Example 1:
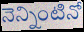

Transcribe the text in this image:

నెన్నింటినో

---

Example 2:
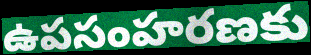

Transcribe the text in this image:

ఉపసంహరణకు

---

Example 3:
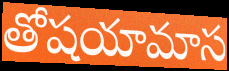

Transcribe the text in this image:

తోషయామాస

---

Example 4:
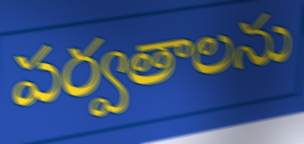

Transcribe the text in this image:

పర్వతాలను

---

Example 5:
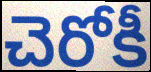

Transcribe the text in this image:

చెరోకీ